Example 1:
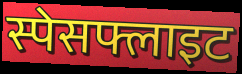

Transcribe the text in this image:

स्पेसफ्लाइट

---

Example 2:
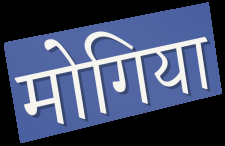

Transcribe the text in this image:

मोगिया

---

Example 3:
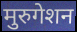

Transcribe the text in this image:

मुरुगेशन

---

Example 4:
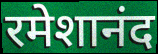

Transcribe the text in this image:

रमेशानंद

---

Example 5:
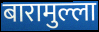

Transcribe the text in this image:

बारामुल्‍ला